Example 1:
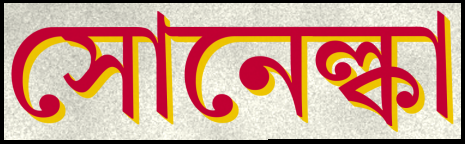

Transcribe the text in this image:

সোনেল্কা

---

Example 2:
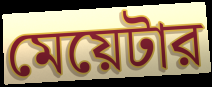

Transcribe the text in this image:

মেয়েটার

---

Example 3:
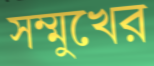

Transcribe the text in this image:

সম্মুখের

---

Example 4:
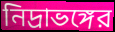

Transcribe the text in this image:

নিদ্রাভঙ্গের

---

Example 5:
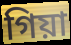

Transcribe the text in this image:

গিয়া